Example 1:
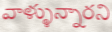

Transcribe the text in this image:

వాళ్ళున్నారని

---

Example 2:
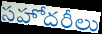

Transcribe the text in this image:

సహోదరీలు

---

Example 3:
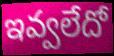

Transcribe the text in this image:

ఇవ్వలేదో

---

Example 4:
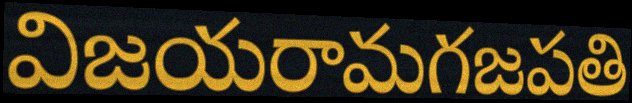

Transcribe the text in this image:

విజయరామగజపతి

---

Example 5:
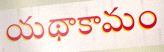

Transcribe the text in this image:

యథాకామం